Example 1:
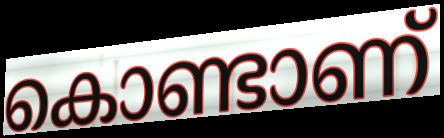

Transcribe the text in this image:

കൊണ്ടാണ്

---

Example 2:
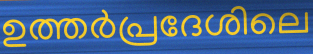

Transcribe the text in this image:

ഉത്തർപ്രദേശിലെ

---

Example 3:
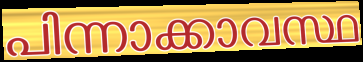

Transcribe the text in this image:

പിന്നാക്കാവസ്ഥ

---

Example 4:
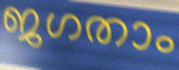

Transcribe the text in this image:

ജഗതാം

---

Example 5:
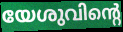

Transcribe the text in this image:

യേശുവിന്റെ